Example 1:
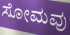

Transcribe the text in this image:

ಸೋಮವು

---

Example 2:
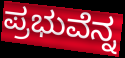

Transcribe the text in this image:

ಪ್ರಭುವೆನ್ನ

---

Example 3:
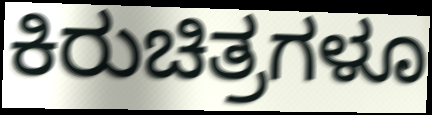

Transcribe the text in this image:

ಕಿರುಚಿತ್ರಗಳೂ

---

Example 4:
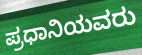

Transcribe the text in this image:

ಪ್ರಧಾನಿಯವರು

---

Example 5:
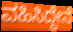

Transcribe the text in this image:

ವಹಿಸಿದ್ದೇನೆ